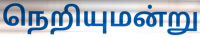
நெறியுமன்று